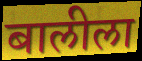
बालीला